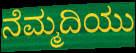
ನೆಮ್ಮದಿಯು